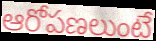
ఆరోపణలుంటే